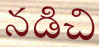
నడిచి